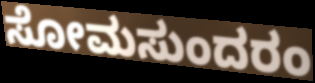
ಸೋಮಸುಂದರಂ